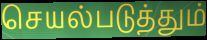
செயல்படுத்தும்